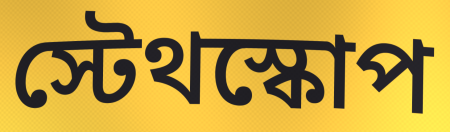
স্টেথস্কোপ